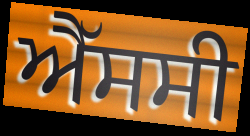
ਐੱਸਸੀ